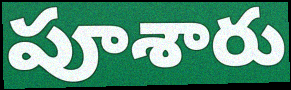
పూశారు